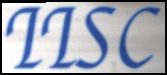
IISC